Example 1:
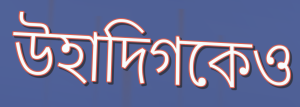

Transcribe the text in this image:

উহাদিগকেও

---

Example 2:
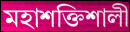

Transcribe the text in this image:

মহাশক্তিশালী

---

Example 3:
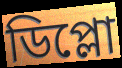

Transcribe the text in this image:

ডিপ্লো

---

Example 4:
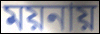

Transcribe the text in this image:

ময়নায়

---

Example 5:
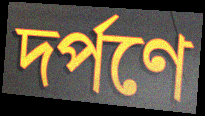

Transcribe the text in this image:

দর্পণে